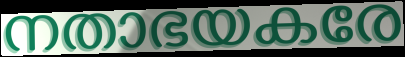
നതാഭയകരേ